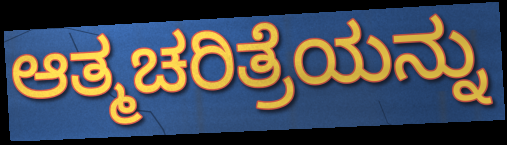
ಆತ್ಮಚರಿತ್ರೆಯನ್ನು